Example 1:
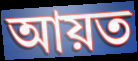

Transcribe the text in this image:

আয়ত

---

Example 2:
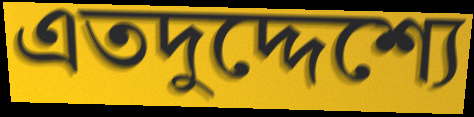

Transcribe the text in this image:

এতদুদ্দেশ্যে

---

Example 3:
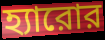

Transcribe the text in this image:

হ্যারোর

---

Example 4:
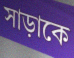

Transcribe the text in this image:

সাড়াকে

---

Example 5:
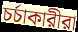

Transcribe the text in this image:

চর্চাকারীরা